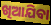
ଖିଆଯିବା